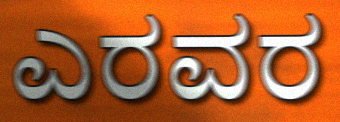
ಎರವರ